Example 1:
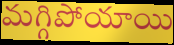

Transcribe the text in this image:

మగ్గిపోయాయి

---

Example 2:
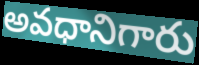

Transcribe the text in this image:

అవధానిగారు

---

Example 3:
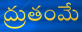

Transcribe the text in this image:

ద్రుతంమే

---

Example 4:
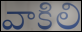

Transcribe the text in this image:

వాకిలి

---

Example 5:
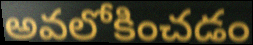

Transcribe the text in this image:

అవలోకించడం